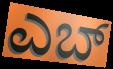
ಎಬ್